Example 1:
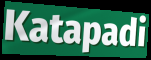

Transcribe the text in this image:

Katapadi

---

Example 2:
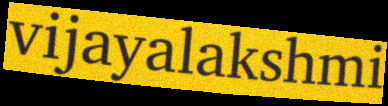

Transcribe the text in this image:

vijayalakshmi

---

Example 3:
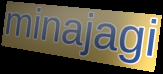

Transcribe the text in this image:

minajagi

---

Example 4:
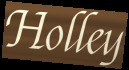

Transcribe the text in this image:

Holley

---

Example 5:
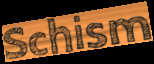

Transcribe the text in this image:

Schism